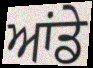
ਆਂਡੇ